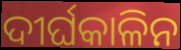
ଦୀର୍ଘକାଳିନ